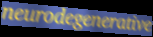
neurodegenerative